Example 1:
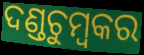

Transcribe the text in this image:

ଦଣ୍ଡଚୁମ୍ବକର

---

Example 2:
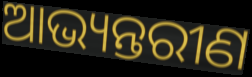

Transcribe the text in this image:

ଆଭ୍ୟନ୍ତରୀଣ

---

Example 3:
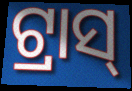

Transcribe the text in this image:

ଟ୍ରାସ୍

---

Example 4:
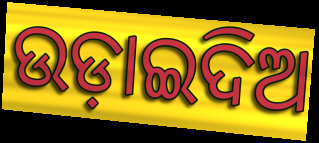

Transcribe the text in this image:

ଉଡ଼ାଇଦିଅ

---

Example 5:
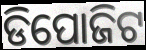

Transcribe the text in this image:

ଡିପୋଜିଟ